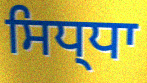
ਸਿਧ੍ਧਾ